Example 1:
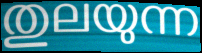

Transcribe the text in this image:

തുലയുന്ന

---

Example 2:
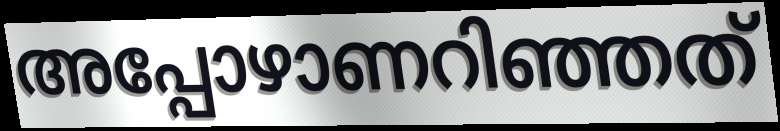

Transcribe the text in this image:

അപ്പോഴാണറിഞ്ഞത്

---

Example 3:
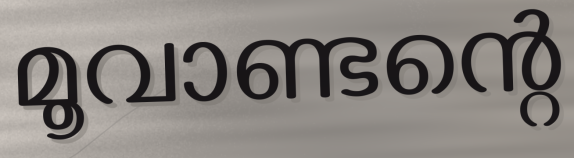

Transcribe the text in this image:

മൂവാണ്ടന്റെ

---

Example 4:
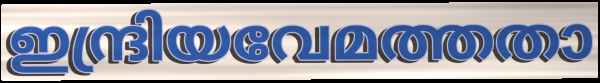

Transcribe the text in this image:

ഇന്ദ്രിയവേമത്തതാ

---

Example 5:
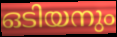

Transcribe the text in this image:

ഒടിയനും